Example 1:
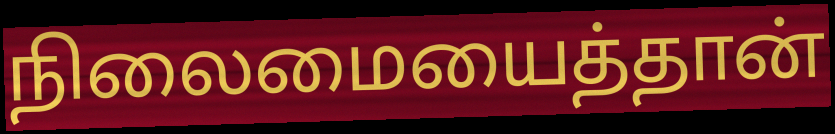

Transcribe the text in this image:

நிலைமையைத்தான்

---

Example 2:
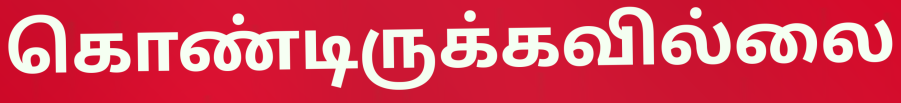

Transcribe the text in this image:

கொண்டிருக்கவில்லை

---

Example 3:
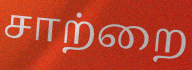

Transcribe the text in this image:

சாற்றை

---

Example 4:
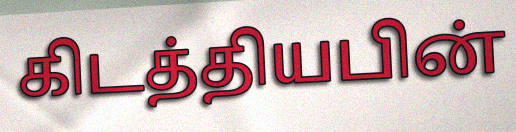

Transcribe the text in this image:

கிடத்தியபின்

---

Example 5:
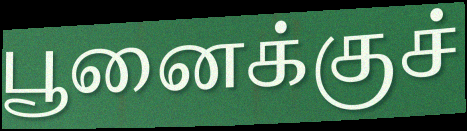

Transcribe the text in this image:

பூனைக்குச்